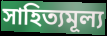
সাহিত্যমূল্য